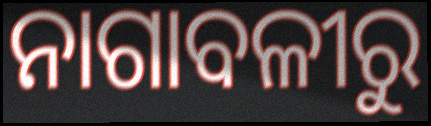
ନାଗାବଳୀରୁ